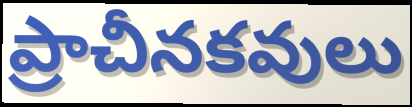
ప్రాచీనకవులు